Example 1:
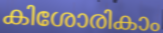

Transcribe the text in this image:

കിശോരികാം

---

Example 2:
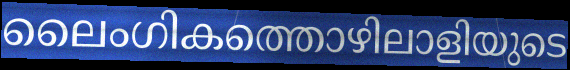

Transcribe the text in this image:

ലൈംഗികത്തൊഴിലാളിയുടെ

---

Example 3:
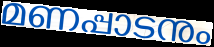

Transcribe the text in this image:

മണപ്പാടനും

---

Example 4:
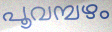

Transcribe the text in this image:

പൂവമ്പഴം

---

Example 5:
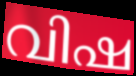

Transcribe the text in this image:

വിഷ